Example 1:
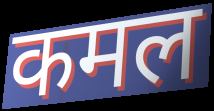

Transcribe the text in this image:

कमल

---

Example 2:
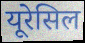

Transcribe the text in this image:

यूरेसिल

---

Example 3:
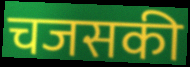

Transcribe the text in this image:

चजसकी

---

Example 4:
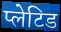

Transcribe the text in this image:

प्लेटिड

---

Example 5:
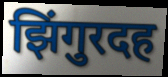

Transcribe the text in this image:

झिंगुरदह